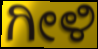
ಗೀಳಿ